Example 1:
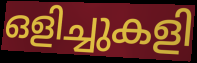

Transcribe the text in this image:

ഒളിച്ചുകളി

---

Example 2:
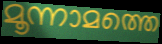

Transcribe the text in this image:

മൂന്നാമത്തെ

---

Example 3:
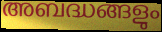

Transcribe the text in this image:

അബദ്ധങ്ങളും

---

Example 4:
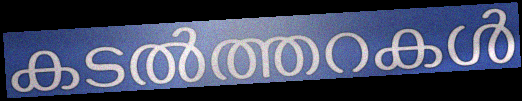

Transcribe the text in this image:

കടൽത്തറകൾ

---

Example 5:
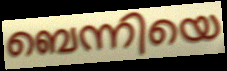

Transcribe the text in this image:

ബെന്നിയെ